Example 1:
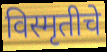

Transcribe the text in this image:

विस्मृतीचे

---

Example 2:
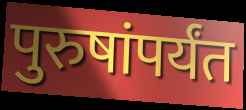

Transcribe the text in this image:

पुरुषांपर्यंत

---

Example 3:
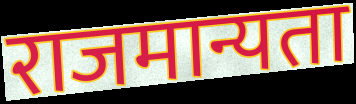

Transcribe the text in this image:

राजमान्यता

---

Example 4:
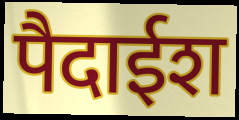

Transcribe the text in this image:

पैदाईश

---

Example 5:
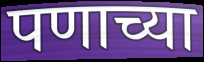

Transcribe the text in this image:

पणाच्या